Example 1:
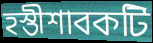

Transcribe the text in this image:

হস্তীশাবকটি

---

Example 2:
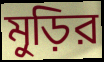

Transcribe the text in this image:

মুড়ির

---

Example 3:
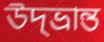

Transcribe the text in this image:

উদ্‌ভ্রান্ত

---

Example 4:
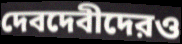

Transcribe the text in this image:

দেবদেবীদেরও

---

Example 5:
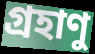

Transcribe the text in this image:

গ্রহাণু